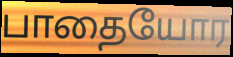
பாதையோர